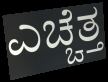
ಎಚ್ಚೆತ್ತ